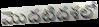
మొదటిదశలో